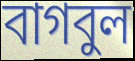
বাগবুল